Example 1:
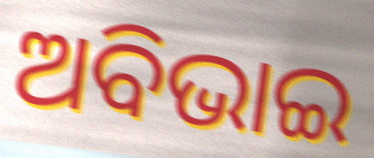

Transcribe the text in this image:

ଅବିଭାଇ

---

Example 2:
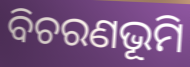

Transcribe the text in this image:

ବିଚରଣଭୂମି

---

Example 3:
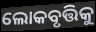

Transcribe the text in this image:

ଲୋକବୃତ୍ତିକୁ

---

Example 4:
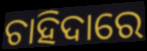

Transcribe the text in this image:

ଚାହିଦାରେ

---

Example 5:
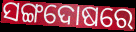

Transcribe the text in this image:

ସଙ୍ଗଦୋଷରେ